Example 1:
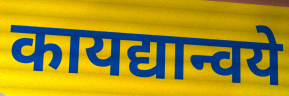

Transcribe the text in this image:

कायद्यान्वये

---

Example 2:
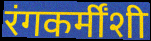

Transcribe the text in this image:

रंगकर्मींशी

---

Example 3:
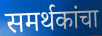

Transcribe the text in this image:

समर्थकांचा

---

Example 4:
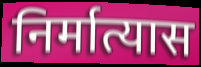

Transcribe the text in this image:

निर्मात्यास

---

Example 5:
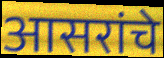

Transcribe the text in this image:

आसरांचे